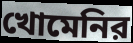
খোমেনির